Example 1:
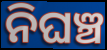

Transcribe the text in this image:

ନିଘଞ୍ଚ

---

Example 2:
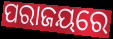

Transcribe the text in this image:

ପରାଜୟରେ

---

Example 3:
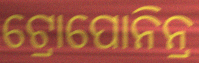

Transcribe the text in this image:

ଟ୍ରୋପୋନିନ୍ର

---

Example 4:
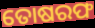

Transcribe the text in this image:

ତୋଷରଫ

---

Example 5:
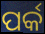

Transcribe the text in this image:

ପର୍କ